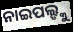
ନାଇପଲ୍ଙ୍କୁ